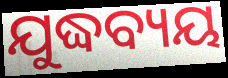
ଯୁଦ୍ଧବ୍ୟୟ